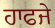
ਹਾਫਜੇ